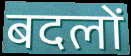
बदलों